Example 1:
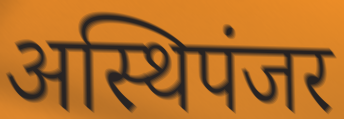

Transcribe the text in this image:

अस्थिपंजर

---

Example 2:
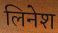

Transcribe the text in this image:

लिनेश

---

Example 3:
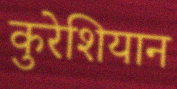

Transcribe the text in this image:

कुरेशियान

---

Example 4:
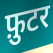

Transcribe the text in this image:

फ़ुटर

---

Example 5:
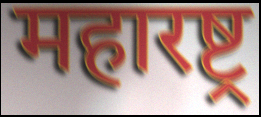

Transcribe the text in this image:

महारष्ट्र